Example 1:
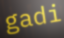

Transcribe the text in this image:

gadi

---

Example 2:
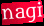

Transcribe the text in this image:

nagi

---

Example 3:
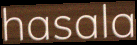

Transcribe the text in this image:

hasala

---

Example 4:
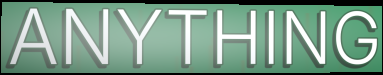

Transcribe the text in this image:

ANYTHING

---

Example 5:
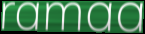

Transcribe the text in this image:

ramaa